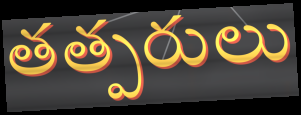
తత్పరులు